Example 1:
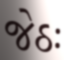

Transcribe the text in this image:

જેઠઃ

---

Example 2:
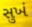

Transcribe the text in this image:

સુખં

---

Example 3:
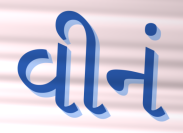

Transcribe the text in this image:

વીનં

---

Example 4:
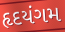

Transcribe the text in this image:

હૃદયંગમ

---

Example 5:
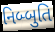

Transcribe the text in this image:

નિબ્બુતિ